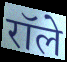
रॉले